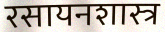
रसायनशास्त्र